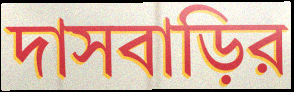
দাসবাড়ির